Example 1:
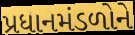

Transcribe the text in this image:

પ્રધાનમંડળોને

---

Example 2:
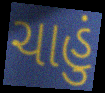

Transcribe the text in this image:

ચાહું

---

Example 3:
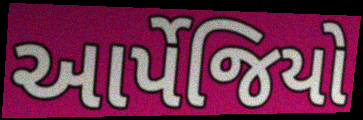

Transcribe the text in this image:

આર્પેજિયો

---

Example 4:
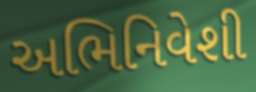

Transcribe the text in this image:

અભિનિવેશી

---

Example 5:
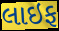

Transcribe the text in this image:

લાઇફ